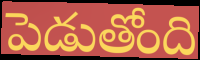
పెడుతోంది